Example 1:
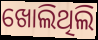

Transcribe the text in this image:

ଖୋଲିଥିଲି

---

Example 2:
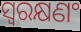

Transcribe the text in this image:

ସ୍ୱରକ୍ଷଣଂ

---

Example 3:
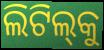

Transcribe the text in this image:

ଲିଟିଲ୍‌କୁ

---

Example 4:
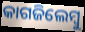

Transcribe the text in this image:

କାଗଜିଲେମ୍ବୁ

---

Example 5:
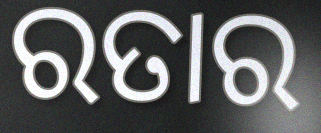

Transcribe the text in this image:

ରତାର